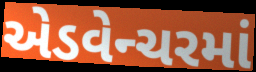
એડવેન્ચરમાં